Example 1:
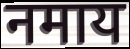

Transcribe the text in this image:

नमाय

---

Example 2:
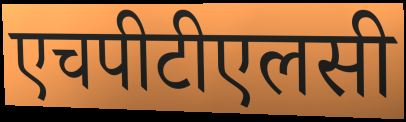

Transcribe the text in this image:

एचपीटीएलसी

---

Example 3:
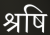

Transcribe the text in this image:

श्रषि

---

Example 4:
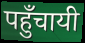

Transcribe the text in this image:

पहुँचायी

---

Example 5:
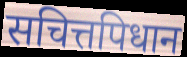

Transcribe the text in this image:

सचित्तपिधान